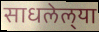
साधलेल्या